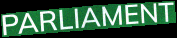
PARLIAMENT